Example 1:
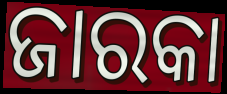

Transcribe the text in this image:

ଜାରକା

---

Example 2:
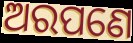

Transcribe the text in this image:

ଅରପଣେ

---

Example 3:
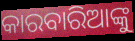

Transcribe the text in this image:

କାରବାରିଆଙ୍କୁ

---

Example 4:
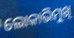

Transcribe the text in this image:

ଲୋକାଭିମୁଖି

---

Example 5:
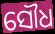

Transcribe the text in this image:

ସୌଧ